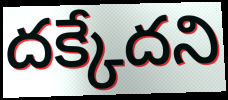
దక్కేదని